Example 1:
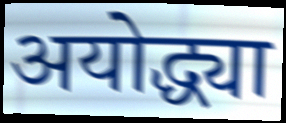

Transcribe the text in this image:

अयोद्ध्या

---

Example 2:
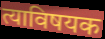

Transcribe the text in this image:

त्याविषयक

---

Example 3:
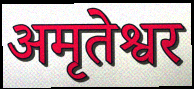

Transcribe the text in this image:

अमृतेश्वर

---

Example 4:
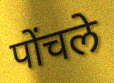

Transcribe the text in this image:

पोंचले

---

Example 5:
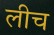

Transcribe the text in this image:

लीच